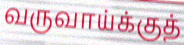
வருவாய்க்குத்